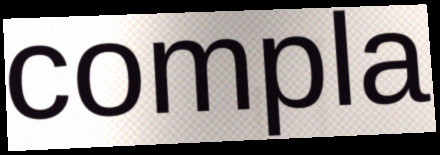
compla